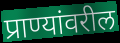
प्राण्यांवरील